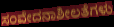
ಸಂವೇದನಾಶೀಲತೆಗಳು